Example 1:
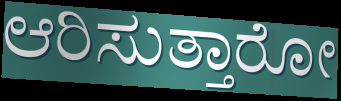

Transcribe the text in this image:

ಆರಿಸುತ್ತಾರೋ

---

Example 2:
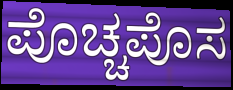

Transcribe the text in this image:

ಪೊಚ್ಚಪೊಸ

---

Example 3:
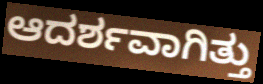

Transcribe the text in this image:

ಆದರ್ಶವಾಗಿತ್ತು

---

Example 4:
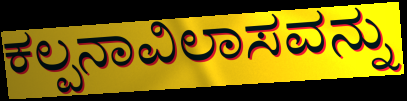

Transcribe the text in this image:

ಕಲ್ಪನಾವಿಲಾಸವನ್ನು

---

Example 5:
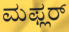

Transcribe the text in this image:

ಮಫ್ಲರ್